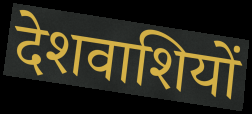
देशवाशियों